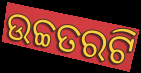
ଉଚ୍ଚତରଟି